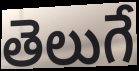
తెలుగే